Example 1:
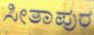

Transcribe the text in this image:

ಸೀತಾಪುರ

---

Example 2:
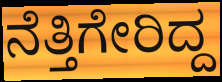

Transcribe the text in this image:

ನೆತ್ತಿಗೇರಿದ್ದ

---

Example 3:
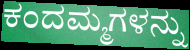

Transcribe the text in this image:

ಕಂದಮ್ಮಗಳನ್ನು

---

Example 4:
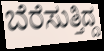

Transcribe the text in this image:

ಬೆರೆಸುತ್ತಿದ್ದ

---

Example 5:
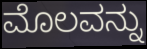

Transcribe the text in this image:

ಮೊಲವನ್ನು